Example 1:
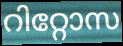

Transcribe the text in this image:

റിറ്റോസ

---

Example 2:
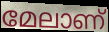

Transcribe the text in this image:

മേലാണ്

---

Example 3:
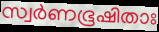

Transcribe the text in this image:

സ്വർണഭൂഷിതാഃ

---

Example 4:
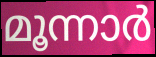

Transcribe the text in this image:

മൂന്നാർ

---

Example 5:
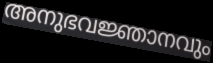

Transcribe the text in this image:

അനുഭവജ്ഞാനവും